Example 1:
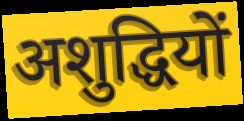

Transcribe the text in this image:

अशुद्धियों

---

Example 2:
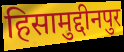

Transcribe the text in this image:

हिसामुद्दीनपुर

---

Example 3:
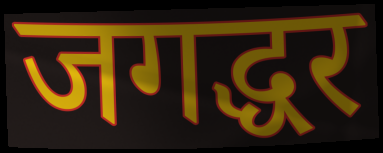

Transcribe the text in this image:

जगद्धर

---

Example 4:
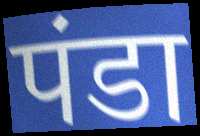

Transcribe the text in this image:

पंडा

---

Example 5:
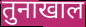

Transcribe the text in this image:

तुनाखाल